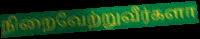
நிறைவேற்றுவீர்களா